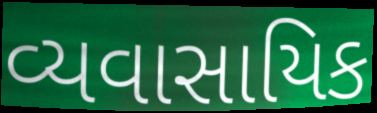
વ્યવાસાયિક